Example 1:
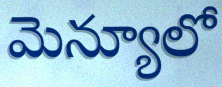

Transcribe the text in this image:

మెన్యూలో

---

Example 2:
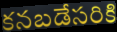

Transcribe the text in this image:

కనబడేసరికి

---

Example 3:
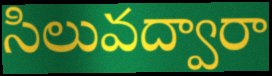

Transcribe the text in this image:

సిలువద్వారా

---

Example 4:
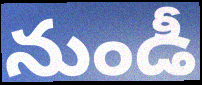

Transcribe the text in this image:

నుండీ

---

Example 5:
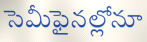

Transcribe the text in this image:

సెమీఫైనల్లోనూ